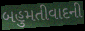
બહુમતીવાદની